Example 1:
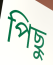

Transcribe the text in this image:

পিছু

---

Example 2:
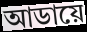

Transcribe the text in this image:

আডায়ে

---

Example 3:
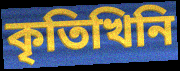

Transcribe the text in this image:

কৃতিখিনি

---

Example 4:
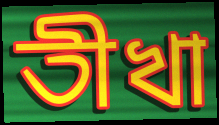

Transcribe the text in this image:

তীখা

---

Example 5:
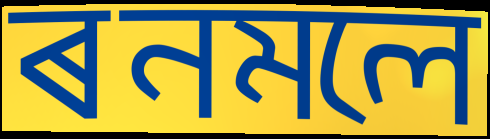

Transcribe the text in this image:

ৰনমলে